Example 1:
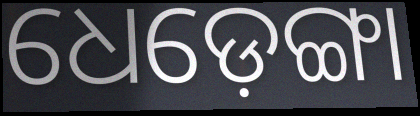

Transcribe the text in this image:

ଧେଡ଼େଙ୍ଗା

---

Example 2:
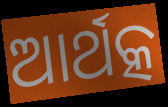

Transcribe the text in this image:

ଆର୍ଥତ୍କ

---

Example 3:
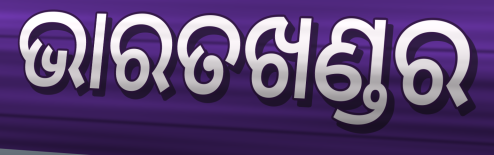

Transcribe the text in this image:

ଭାରତଖଣ୍ଡର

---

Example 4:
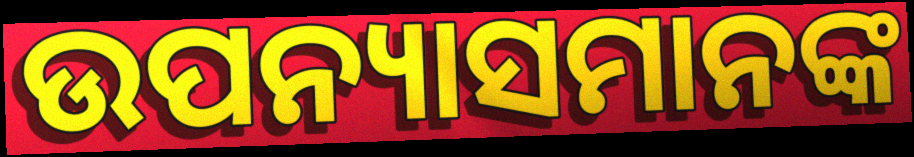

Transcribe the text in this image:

ଉପନ୍ୟାସମାନଙ୍କ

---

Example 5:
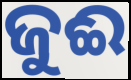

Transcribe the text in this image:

ଜୁଈ